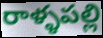
రాళ్ళపల్లి